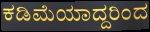
ಕಡಿಮೆಯಾದ್ದರಿಂದ